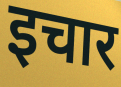
इचार